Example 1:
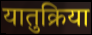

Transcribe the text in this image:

यातुक्रिया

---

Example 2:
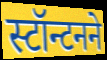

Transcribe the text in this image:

स्टॉन्टनने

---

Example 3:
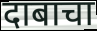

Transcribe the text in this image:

दाबाचा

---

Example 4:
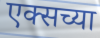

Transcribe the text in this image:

एक्सच्या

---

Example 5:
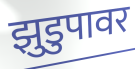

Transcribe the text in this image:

झुडुपावर